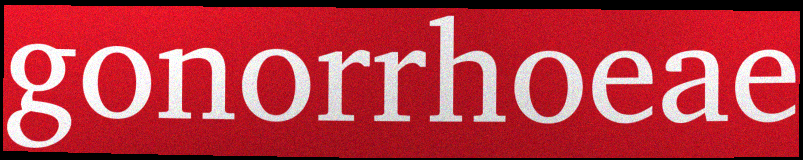
gonorrhoeae